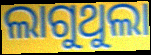
ଲାଗୁଥୁଲା